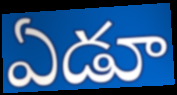
ఏడూ